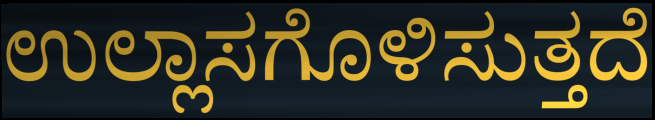
ಉಲ್ಲಾಸಗೊಳಿಸುತ್ತದೆ